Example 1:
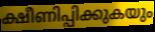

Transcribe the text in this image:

ക്ഷീണിപ്പിക്കുകയും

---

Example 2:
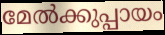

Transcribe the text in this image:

മേൽക്കുപ്പായം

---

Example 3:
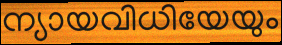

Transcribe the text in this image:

ന്യായവിധിയേയും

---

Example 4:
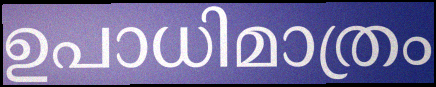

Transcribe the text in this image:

ഉപാധിമാത്രം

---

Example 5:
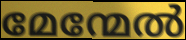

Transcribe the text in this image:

മേന്മേൽ